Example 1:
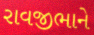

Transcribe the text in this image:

રાવજીભાને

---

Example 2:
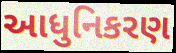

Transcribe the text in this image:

આધુનિકરણ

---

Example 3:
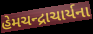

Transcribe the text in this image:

હેમચન્દ્રાચાર્યના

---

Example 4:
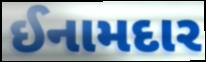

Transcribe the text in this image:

ઈનામદાર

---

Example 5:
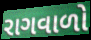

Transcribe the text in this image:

રાગવાળો